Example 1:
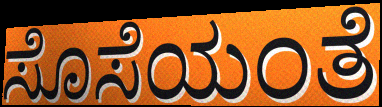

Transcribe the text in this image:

ಸೊಸೆಯಂತೆ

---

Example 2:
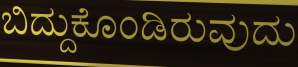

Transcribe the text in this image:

ಬಿದ್ದುಕೊಂಡಿರುವುದು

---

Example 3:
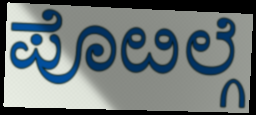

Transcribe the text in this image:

ಪೊೞಲ್ಗೆ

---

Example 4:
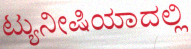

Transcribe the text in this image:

ಟ್ಯುನೀಷಿಯಾದಲ್ಲಿ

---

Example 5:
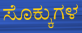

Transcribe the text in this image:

ಸೊಕ್ಕುಗಳ